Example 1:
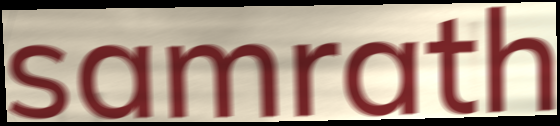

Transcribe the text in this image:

samrath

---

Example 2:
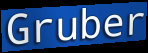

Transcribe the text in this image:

Gruber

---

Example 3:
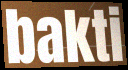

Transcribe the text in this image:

bakti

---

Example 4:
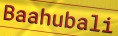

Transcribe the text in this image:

Baahubali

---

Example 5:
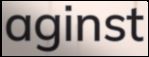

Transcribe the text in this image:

aginst